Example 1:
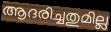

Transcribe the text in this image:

ആദരിച്ചതുമില്ല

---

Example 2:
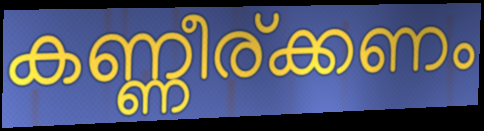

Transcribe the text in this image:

കണ്ണീര്ക്കണം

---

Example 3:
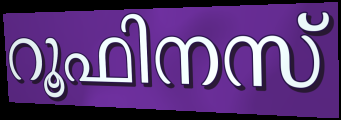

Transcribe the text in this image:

റൂഫിനസ്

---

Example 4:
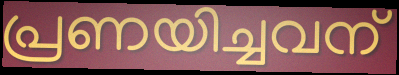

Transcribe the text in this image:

പ്രണയിച്ചവന്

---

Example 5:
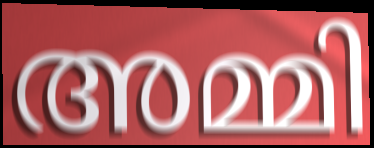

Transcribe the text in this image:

അമ്മി